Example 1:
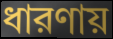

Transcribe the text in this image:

ধারণায়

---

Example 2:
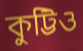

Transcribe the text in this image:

কুট্টিও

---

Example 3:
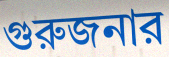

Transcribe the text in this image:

গুরুজনার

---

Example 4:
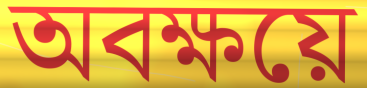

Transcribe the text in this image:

অবক্ষয়ে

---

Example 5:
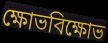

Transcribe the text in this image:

ক্ষোভবিক্ষোভ